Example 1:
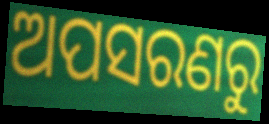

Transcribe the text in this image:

ଅପସରଣରୁ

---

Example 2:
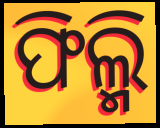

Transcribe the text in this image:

ଫିଲ୍ମି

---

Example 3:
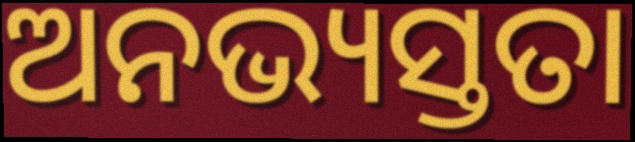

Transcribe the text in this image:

ଅନଭ୍ୟସ୍ତତା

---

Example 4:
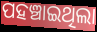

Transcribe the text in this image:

ପହଞ୍ଚାଇଥିଲା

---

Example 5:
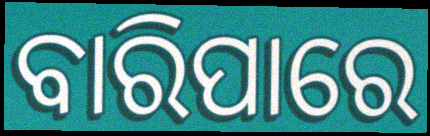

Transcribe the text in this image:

ବାରିପାରେ